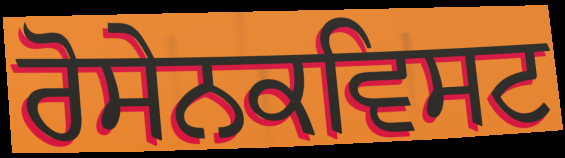
ਰੋਸੇਨਕਵਿਸਟ